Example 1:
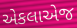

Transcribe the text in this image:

એકલાએજ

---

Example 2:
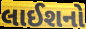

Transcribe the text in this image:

લાઈશનો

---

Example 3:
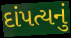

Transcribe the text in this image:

દાંપત્યનું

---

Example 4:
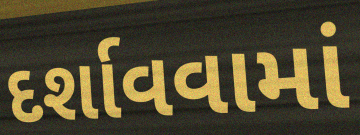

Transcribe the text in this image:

દર્શાવવામાં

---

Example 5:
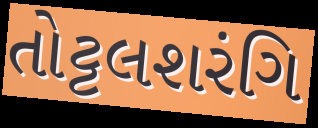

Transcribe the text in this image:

તોટ્ટલશરંગિ